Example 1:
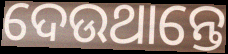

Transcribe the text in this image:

ଦେଉଥାନ୍ତେ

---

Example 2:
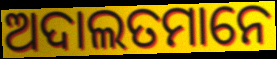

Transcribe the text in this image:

ଅଦାଲତମାନେ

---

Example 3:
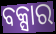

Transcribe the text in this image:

ବକ୍ସାର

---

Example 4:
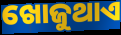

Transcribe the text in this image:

ଖୋଜୁଥାଏ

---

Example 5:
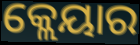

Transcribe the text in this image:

କ୍ଲେୟାର